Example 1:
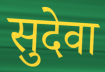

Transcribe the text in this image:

सुदेवा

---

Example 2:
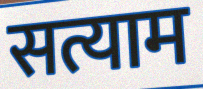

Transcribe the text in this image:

सत्याम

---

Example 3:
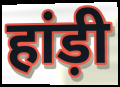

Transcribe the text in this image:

हांड़ी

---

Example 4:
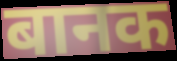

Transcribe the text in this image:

बानक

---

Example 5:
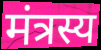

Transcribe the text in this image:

मंत्रस्य